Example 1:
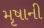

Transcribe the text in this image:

મૃષાની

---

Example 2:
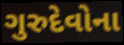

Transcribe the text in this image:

ગુરુદેવોના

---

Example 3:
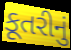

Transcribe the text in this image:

કૂતરીનું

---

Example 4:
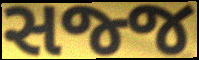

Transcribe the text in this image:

સજ્જ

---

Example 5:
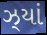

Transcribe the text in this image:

ઝ્યાં